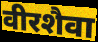
वीरशैवा